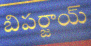
బిపర్జాయ్